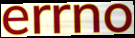
errno